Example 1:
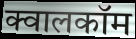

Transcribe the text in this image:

क्‍वालकॉम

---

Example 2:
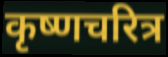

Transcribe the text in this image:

कृष्णचरित्र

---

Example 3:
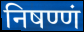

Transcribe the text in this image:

निषण्णं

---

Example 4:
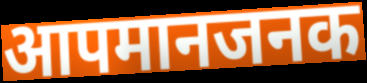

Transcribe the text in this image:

आपमानजनक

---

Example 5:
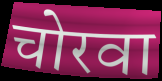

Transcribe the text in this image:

चोरवा